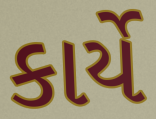
કાર્યે